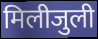
मिलीजुली